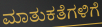
ಮಾತುಕತೆಗಳಿಗೆ